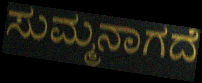
ಸುಮ್ಮನಾಗದೆ